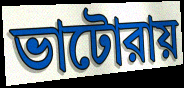
ভাটোরায়